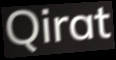
Qirat